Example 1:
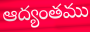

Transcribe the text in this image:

ఆద్యంతము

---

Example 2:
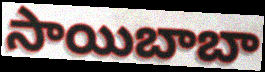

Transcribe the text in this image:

సాయిబాబా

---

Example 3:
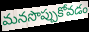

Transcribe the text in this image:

మనసొప్పుకోవడం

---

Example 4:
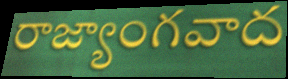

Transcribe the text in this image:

రాజ్యాంగవాద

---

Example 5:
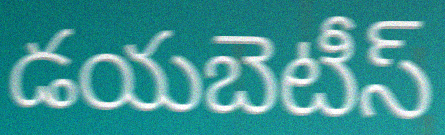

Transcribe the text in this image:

డయబెటీస్